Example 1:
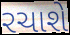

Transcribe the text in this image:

રચાશે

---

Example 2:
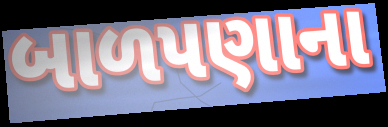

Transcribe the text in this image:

બાળપણાના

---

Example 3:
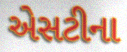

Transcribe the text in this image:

એસટીના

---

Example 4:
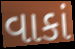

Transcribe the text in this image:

વાકાં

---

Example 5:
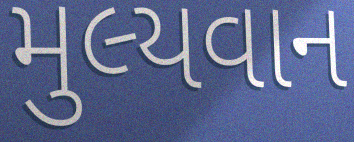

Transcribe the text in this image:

મુલ્યવાન